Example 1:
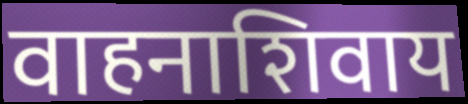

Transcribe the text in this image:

वाहनाशिवाय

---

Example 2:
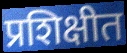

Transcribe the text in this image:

प्रशिक्षीत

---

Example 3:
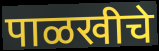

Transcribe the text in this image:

पाळखीचे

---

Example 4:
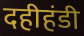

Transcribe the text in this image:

दहीहंडी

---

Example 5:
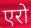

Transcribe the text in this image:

एरो